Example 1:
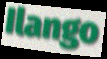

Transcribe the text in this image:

Ilango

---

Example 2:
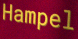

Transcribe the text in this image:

Hampel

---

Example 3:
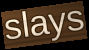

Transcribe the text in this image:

slays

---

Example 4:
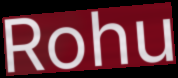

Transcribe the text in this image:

Rohu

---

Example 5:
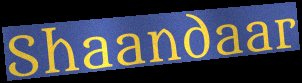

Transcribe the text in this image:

Shaandaar